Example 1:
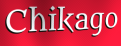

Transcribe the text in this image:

Chikago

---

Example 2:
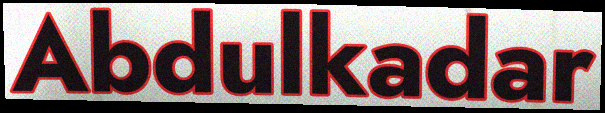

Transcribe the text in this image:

Abdulkadar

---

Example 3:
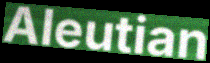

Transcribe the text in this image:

Aleutian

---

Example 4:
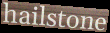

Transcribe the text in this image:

hailstone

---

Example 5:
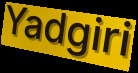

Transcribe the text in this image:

Yadgiri